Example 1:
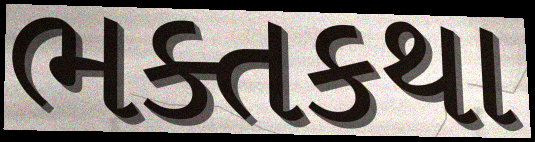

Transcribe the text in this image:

ભક્તકથા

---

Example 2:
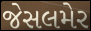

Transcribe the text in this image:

જેસલમેર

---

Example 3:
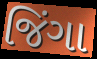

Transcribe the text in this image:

જિંગા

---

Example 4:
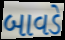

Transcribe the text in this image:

બાવડે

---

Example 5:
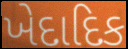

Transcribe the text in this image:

ખેદાદિક